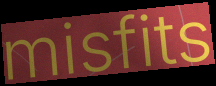
misfits